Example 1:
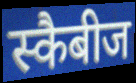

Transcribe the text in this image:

स्कैबीज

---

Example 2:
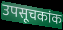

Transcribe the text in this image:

उपसूचकांक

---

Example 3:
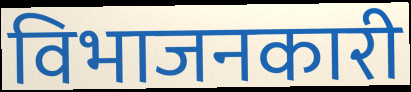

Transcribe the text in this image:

विभाजनकारी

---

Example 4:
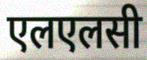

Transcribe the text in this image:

एलएलसी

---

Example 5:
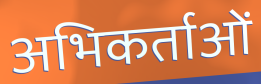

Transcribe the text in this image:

अभिकर्ताओं